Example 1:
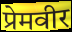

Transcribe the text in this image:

प्रेमवीर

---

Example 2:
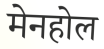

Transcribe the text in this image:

मेनहोल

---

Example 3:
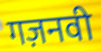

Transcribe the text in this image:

गज़नवी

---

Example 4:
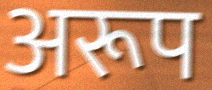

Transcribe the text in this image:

अरूप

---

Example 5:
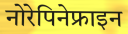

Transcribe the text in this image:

नोरेपिनेफ्राइन